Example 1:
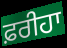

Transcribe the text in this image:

ਫ਼ਰੀਹਾ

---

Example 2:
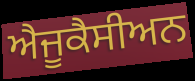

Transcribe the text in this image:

ਐਜੂਕੈਸੀਅਨ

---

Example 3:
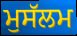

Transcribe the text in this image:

ਮੁਸੱਲਮ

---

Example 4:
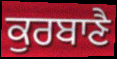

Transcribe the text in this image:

ਕੁਰਬਾਣੈ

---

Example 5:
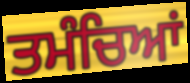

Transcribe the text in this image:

ਤਮੰਚਿਆਂ